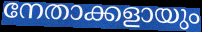
നേതാക്കളായും